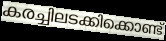
കരച്ചിലടക്കിക്കൊണ്ട്